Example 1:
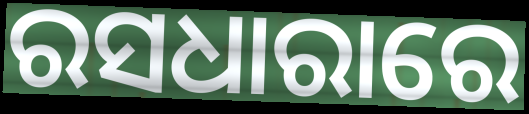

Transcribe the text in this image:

ରସଧାରାରେ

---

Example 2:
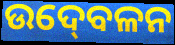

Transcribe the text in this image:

ଉଦ୍‍ବେଳନ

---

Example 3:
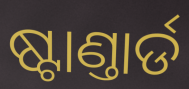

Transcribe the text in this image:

ଷ୍ଟାଣ୍ତାର୍ଡ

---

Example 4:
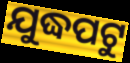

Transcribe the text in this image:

ଯୁଦ୍ଧପଟୁ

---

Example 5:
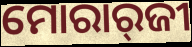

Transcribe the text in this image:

ମୋରାର୍‍ଜୀ